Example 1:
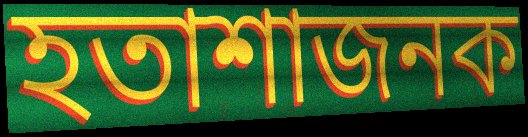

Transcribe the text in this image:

হতাশাজনক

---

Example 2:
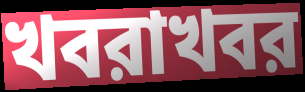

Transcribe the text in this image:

খবরাখবর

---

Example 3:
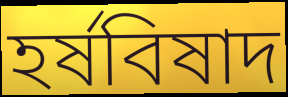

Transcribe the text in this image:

হর্ষবিষাদ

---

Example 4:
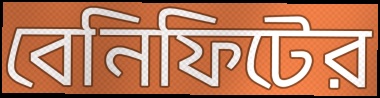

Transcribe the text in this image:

বেনিফিটের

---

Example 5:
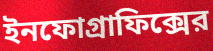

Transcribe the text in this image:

ইনফোগ্রাফিক্সের